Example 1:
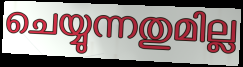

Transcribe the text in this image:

ചെയ്യുന്നതുമില്ല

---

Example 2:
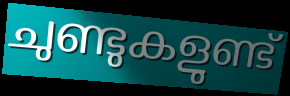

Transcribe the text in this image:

ചുണ്ടുകളുണ്ട്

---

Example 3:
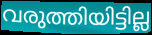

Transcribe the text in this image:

വരുത്തിയിട്ടില്ല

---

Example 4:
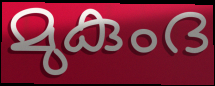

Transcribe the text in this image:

മുകുംദ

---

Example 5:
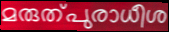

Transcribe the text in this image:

മരുത്പുരാധീശ